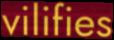
vilifies